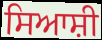
ਸਿਆਸ਼ੀ